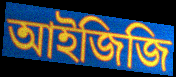
আইজিজি